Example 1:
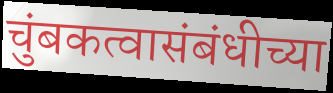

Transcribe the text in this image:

चुंबकत्वासंबंधीच्या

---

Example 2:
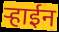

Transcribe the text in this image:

ऱ्हाईन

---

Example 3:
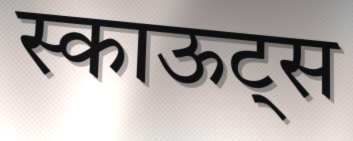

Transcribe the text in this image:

स्काऊट्स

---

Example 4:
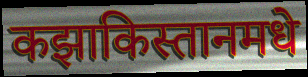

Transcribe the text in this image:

कझाकिस्तानमधे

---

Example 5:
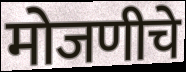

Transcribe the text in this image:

मोजणीचे